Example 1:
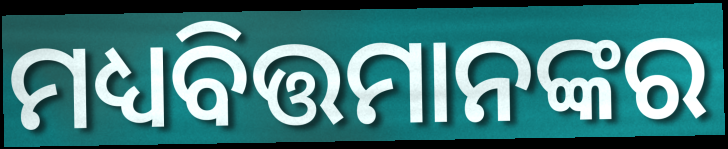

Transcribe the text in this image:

ମଧ୍ୟବିତ୍ତମାନଙ୍କର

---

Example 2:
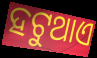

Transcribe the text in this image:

ହଟୁଥାଏ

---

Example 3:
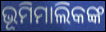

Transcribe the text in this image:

ଭୂମିମାଲିକଙ୍କ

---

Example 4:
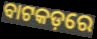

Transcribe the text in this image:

ବାଟକଡ଼ରେ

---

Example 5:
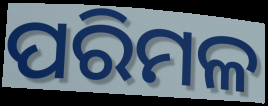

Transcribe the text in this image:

ପରିମଳ